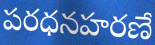
పరధనహరణే